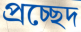
প্রচ্ছেদ